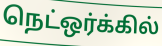
நெட்ஒர்க்கில்